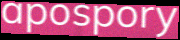
apospory